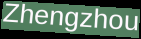
Zhengzhou